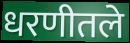
धरणीतले